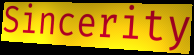
Sincerity